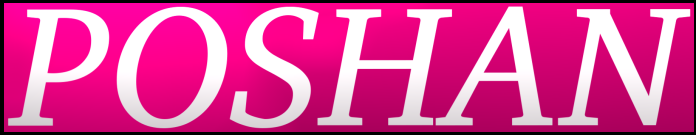
POSHAN